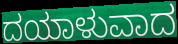
ದಯಾಳುವಾದ